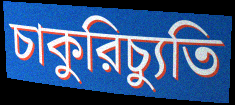
চাকুরিচ্যুতি